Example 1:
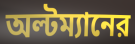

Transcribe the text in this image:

অল্টম্যানের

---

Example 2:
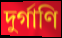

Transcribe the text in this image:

দুর্গাণি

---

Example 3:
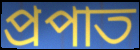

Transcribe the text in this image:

প্রপাত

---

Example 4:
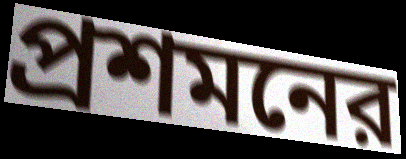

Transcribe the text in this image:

প্রশমনের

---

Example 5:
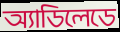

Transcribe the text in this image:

অ্যাডিলেডে